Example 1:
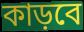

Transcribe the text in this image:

কাড়বে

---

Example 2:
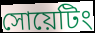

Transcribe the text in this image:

সোয়েটিং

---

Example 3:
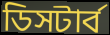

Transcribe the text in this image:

ডিসটার্ব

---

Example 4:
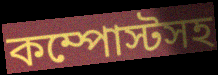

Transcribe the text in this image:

কম্পোস্টসহ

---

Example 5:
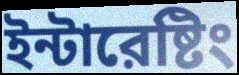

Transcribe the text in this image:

ইন্টারেষ্টিং